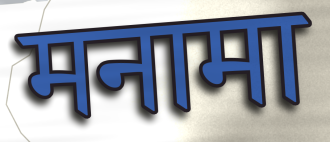
मनामा